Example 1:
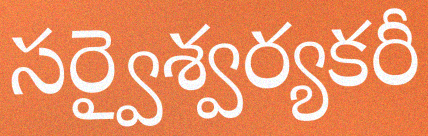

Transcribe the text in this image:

సర్వైశ్వర్యకరీ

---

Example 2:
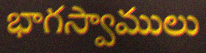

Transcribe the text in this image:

భాగస్వాములు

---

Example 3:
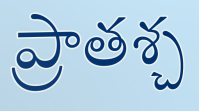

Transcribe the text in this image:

ప్రాతశ్చ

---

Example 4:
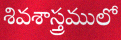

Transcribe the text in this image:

శివశాస్త్రములో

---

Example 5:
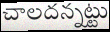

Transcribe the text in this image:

చాలదన్నట్టు